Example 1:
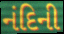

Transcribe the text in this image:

નંદિની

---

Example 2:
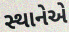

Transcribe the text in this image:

સ્થાનેએ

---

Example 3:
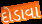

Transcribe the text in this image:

દોડાવા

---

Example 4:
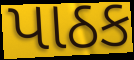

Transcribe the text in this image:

પાઠક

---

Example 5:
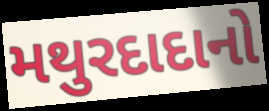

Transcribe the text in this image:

મથુરદાદાનો